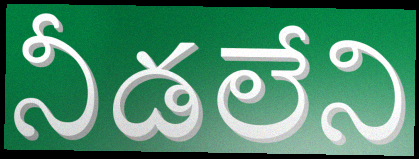
నీడలేని